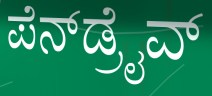
ಪೆನ್‌ಡ್ರೈವ್